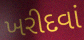
ખરીદવાં